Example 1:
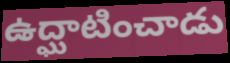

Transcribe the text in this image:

ఉద్ఘాటించాడు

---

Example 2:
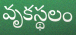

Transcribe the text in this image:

వృకస్థలం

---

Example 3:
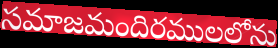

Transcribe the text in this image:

సమాజమందిరములలోను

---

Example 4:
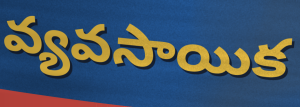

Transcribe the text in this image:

వ్యవసాయిక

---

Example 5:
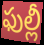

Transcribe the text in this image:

ఫుల్లీ